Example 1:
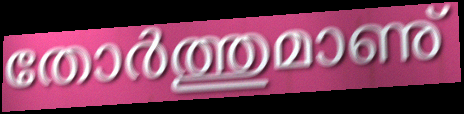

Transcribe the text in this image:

തോർത്തുമാണു്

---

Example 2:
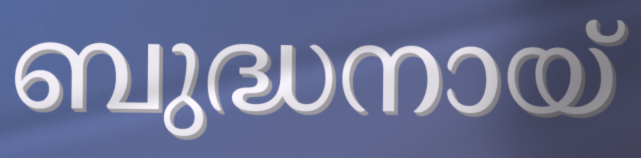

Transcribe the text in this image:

ബുദ്ധനായ്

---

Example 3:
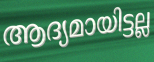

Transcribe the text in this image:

ആദ്യമായിട്ടല്ല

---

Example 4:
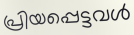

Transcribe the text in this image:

പ്രിയപ്പെട്ടവൾ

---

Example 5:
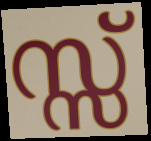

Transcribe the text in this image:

സ്സ്